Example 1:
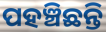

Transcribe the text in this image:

ପହଞ୍ଚିଛନ୍ତି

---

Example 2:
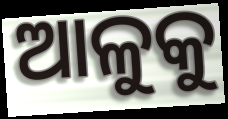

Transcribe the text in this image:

ଆଳୁକୁ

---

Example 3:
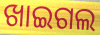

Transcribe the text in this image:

ଖାଇଗଲ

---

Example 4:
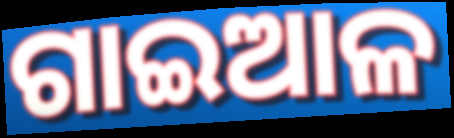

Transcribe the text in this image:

ଗାଇଆଳ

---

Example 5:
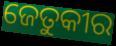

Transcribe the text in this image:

ଜେତୁକୀର